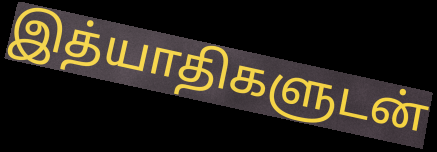
இத்யாதிகளுடன்